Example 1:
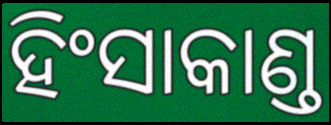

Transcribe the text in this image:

ହିଂସାକାଣ୍ଡ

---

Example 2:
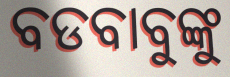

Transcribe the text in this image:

ବଡବାବୁଙ୍କୁ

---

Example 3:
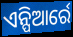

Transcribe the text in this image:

ଏନ୍ପିଆର୍ରେ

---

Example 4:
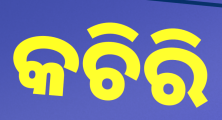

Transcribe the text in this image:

କଚିରି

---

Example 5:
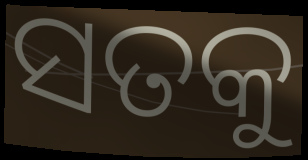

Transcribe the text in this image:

ସତକୁ